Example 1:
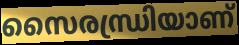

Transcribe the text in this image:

സൈരന്ധ്രിയാണ്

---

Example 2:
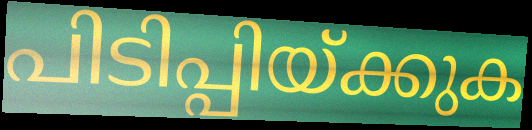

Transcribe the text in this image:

പിടിപ്പിയ്ക്കുക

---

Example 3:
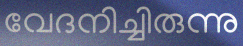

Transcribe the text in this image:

വേദനിച്ചിരുന്നു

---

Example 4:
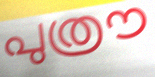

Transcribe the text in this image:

പുത്രൗ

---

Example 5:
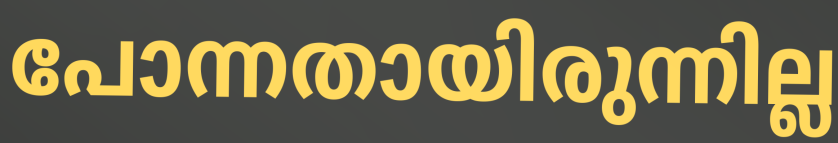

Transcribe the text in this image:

പോന്നതായിരുന്നില്ല